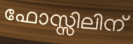
ഫോസ്സിലിന്